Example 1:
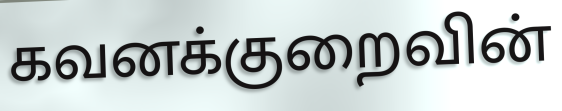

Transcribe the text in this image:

கவனக்குறைவின்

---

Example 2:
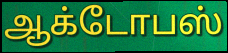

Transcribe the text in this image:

ஆக்டோபஸ்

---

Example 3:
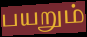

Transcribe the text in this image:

பயறும்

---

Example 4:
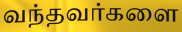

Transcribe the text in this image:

வந்தவர்களை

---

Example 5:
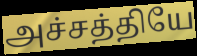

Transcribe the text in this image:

அச்சத்தியே